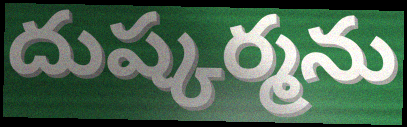
దుష్కర్మను